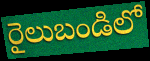
రైలుబండిలో